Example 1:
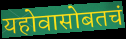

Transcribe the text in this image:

यहोवासोबतचं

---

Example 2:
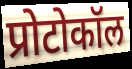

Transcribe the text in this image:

प्रोटोकॉल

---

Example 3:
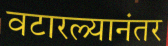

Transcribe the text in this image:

वटारल्यानंतर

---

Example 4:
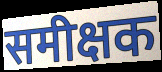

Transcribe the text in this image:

समीक्षक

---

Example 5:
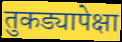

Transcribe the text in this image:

तुकड्यापेक्षा